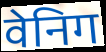
वेनिग